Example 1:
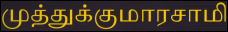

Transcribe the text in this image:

முத்துக்குமாரசாமி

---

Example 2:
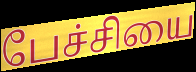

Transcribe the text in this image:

பேச்சியை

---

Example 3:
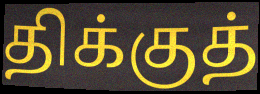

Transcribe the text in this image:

திக்குத்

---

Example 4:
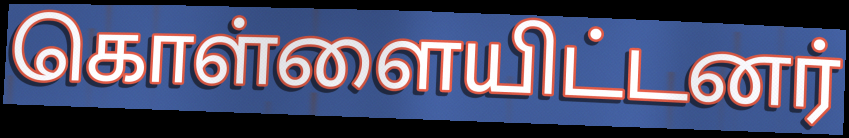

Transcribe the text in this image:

கொள்ளையிட்டனர்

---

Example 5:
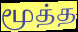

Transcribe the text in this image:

மூத்த